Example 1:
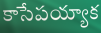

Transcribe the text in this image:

కాసేపయ్యాక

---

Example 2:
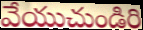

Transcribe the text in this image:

వేయుచుండిరి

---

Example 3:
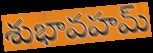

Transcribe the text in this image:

శుభావహమ్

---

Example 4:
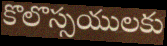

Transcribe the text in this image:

కొలొస్సయులకు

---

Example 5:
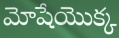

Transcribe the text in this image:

మోషేయొక్క